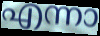
എന്നാ